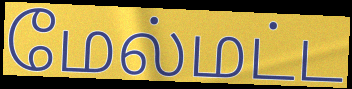
மேல்மட்ட